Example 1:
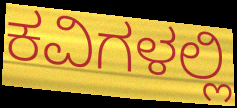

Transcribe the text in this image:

ಕವಿಗಳಲ್ಲಿ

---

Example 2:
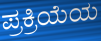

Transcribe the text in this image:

ಪ್ರಕ್ರಿಯೆಯ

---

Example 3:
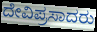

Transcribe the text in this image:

ದೇವಿಪ್ರಸಾದರು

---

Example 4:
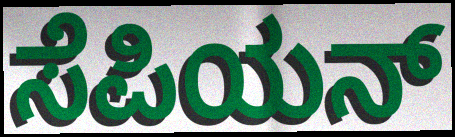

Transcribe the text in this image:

ಸೆಪಿಯನ್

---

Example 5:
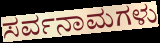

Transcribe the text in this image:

ಸರ್ವನಾಮಗಳು